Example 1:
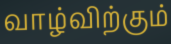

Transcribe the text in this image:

வாழ்விற்கும்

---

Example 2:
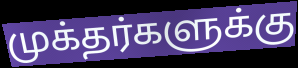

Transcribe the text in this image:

முக்தர்களுக்கு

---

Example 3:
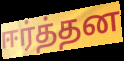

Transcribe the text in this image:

ஈர்த்தன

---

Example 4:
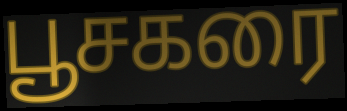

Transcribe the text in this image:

பூசகரை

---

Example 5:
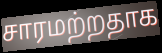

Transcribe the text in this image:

சாரமற்றதாக